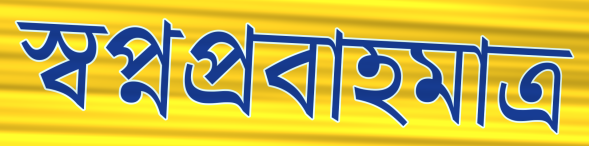
স্বপ্নপ্রবাহমাত্র